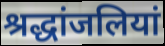
श्रद्धांजलियां